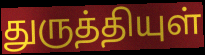
துருத்தியுள்